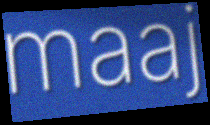
maaj